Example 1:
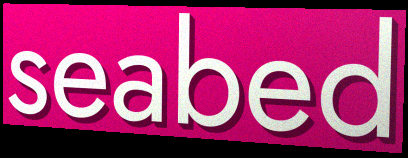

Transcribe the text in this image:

seabed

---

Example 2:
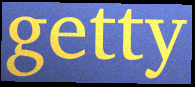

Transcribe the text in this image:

getty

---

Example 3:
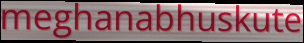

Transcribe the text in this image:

meghanabhuskute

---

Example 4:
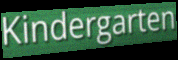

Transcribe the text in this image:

Kindergarten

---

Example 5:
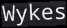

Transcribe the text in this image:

Wykes